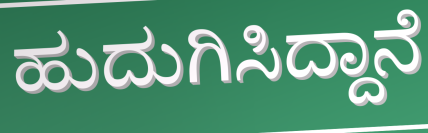
ಹುದುಗಿಸಿದ್ದಾನೆ